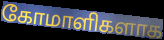
கோமாளிகளாக